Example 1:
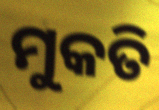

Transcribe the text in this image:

ମୁକତି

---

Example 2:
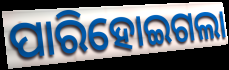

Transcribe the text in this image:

ପାରିହୋଇଗଲା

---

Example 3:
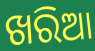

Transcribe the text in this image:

ଖରିଆ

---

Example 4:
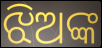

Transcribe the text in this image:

ଝିଅଙ୍କ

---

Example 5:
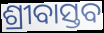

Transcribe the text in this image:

ଶ୍ରୀବାସ୍ତବ